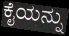
ಕೈಯನ್ನು